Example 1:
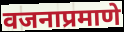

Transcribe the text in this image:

वजनाप्रमाणे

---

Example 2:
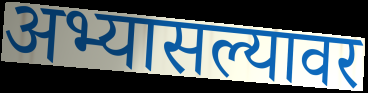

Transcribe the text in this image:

अभ्यासल्यावर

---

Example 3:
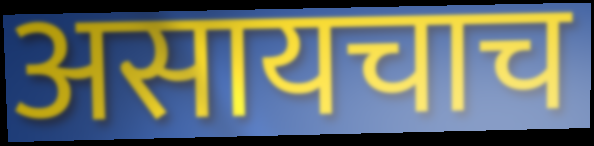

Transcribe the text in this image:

असायचाच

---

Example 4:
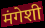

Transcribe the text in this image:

मंगेशी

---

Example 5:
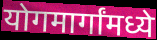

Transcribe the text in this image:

योगमार्गांमध्ये